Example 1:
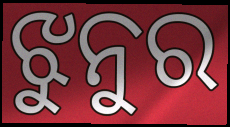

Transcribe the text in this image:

ଝୁନୁର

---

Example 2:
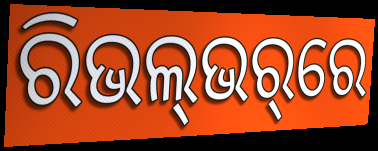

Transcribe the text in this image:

ରିଭଲ୍‌ଭର୍‌ରେ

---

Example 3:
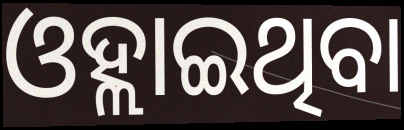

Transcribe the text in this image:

ଓହ୍ଲାଇଥିବା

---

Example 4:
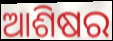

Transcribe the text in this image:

ଆଶିଷର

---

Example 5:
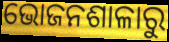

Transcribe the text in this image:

ଭୋଜନଶାଳାରୁ